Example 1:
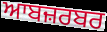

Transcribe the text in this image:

ਆਬਜ਼ਰਬਰ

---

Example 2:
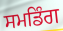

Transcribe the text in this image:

ਸਮਡਿੰਗ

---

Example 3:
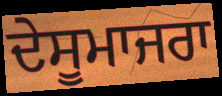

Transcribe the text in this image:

ਦੇਸੂਮਾਜਰਾ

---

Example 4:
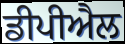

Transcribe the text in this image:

ਡੀਪੀਐਲ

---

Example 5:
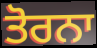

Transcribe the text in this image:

ਤੋਰਨਾ